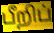
பீறிப்